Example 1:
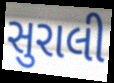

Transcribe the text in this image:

સુરાલી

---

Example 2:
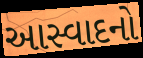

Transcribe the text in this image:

આસ્વાદનો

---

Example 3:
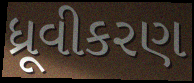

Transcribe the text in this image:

ધ્રૂવીકરણ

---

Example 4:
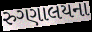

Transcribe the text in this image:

રુગ્ણાલયના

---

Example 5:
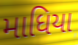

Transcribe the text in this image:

માધિયા